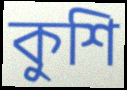
কুশি